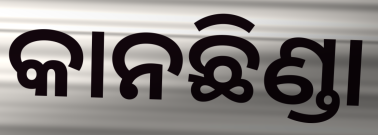
କାନଛିଣ୍ଡା